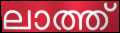
ലാത്ത്